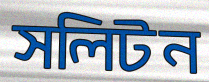
সলিটন